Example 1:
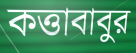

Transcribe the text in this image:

কত্তাবাবুর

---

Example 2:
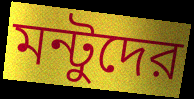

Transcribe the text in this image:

মন্টুদের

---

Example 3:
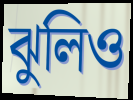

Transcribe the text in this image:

ঝুলিও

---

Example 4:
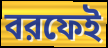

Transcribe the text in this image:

বরফেই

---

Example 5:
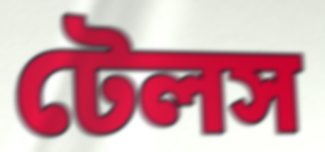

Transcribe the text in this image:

টেলস